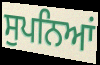
ਸੁਪਨਿਆਂ